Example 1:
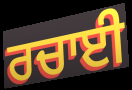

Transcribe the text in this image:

ਰਚਾਈ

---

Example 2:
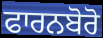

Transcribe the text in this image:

ਫਾਰਨਬੋਰੋ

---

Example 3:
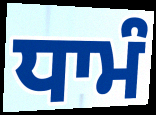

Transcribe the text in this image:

ਧਾਮੰ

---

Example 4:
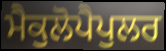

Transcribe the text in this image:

ਮੈਕੁਲੋਪੈਪੁਲਰ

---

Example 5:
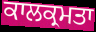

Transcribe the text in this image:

ਕਾਲਕ੍ਰਮਤਾ